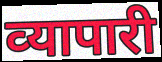
व्‍यापारी